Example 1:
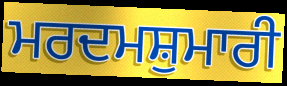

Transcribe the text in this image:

ਮਰਦਮਸ਼ੁਮਾਰੀ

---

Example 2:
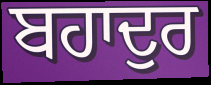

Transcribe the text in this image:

ਬਹਾਦੁਰ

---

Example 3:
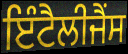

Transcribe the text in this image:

ਇੰਟੈਲੀਜੈਂਸ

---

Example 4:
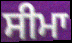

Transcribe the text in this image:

ਸੀਮਾ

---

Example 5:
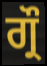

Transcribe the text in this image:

ਗ੍ਰੌ